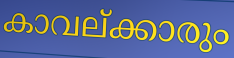
കാവല്ക്കാരും